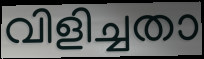
വിളിച്ചതാ